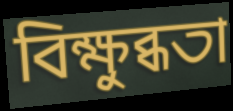
বিক্ষুব্ধতা